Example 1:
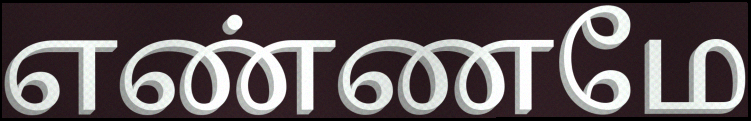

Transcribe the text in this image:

எண்ணமே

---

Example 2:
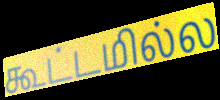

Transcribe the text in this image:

கூட்டமில்ல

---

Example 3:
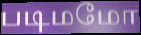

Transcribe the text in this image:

படிமமோ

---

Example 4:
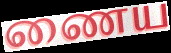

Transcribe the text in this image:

ணைய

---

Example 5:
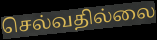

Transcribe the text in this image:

செல்வதில்லை